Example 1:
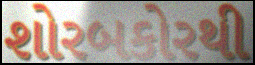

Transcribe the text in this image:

શોરબકોરથી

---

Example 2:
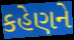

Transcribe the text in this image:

કહેણને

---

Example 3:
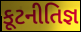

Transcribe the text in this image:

કૂટનીતિજ્ઞ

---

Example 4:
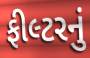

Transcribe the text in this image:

ફીલ્ટરનું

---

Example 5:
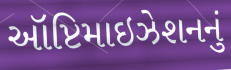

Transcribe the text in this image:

ઑપ્ટિમાઇઝેશનનું